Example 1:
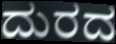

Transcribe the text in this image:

ದುರದ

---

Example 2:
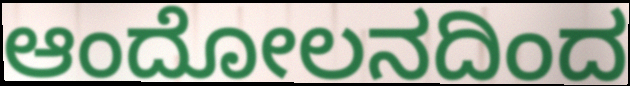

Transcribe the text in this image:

ಆಂದೋಲನದಿಂದ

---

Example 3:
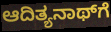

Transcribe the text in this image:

ಆದಿತ್ಯನಾಥ್‌ಗೆ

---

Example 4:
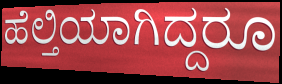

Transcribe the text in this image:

ಹೆಲ್ತಿಯಾಗಿದ್ದರೂ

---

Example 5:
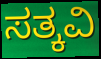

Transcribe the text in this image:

ಸತ್ಕವಿ